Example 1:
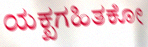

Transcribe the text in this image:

ಯಕ್ಖಗಹಿತಕೋ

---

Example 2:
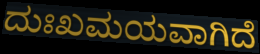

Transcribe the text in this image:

ದುಃಖಮಯವಾಗಿದೆ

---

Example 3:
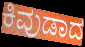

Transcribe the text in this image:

ಕಿವುಡಾದ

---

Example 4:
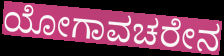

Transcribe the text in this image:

ಯೋಗಾವಚರೇನ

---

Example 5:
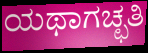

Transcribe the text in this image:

ಯಥಾಗಚ್ಛತಿ